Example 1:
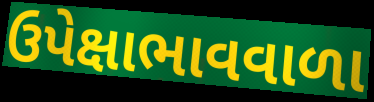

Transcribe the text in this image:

ઉપેક્ષાભાવવાળા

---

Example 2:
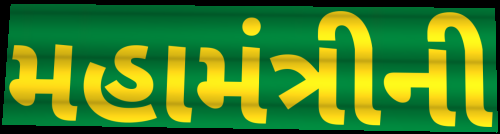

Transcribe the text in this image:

મહામંત્રીની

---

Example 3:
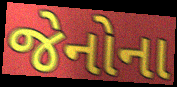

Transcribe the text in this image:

જેનોના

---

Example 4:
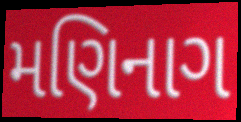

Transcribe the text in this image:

મણિનાગ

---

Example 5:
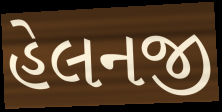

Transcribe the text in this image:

હેલનજી